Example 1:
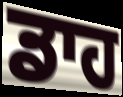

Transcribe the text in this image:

ਡਾਹ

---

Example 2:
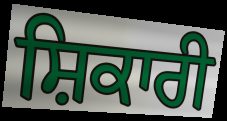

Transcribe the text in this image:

ਸ਼ਿਕਾਰੀ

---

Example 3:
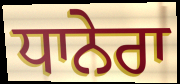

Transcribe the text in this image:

ਧਾਨੇਰਾ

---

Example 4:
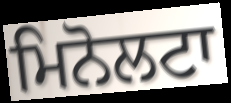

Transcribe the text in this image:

ਮਿਨੋਲਟਾ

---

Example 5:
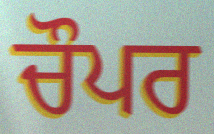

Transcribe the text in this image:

ਚੌਪਰ